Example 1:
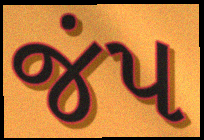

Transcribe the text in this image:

જંપ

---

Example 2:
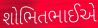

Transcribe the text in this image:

શોભિતભાઈએ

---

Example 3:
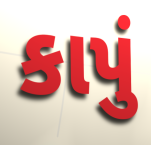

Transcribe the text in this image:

કાપું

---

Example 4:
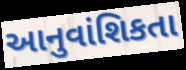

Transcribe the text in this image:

આનુવાંશિકતા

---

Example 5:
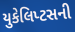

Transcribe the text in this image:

યુકેલિપ્ટસની